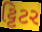
ટ્ટિટર